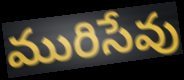
మురిసేవు